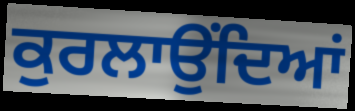
ਕੁਰਲਾਉਂਦਿਆਂ